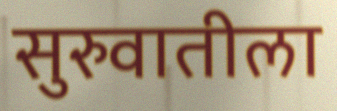
सुरुवातीला